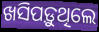
ଖସିପଡ଼ୁଥିଲେ